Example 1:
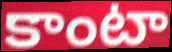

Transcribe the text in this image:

కాంటా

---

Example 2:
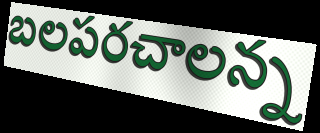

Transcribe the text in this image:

బలపరచాలన్న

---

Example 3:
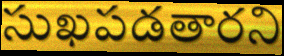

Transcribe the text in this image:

సుఖపడతారని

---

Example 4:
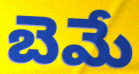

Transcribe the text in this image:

బెమే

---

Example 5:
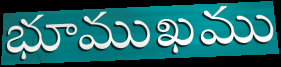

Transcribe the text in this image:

భూముఖము